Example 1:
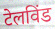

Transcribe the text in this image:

टेलविंड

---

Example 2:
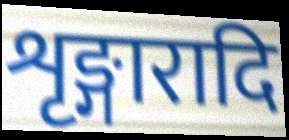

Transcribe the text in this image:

शृङ्गारादि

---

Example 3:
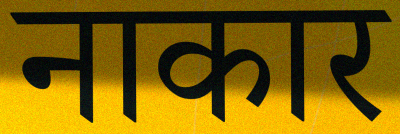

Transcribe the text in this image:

नाकार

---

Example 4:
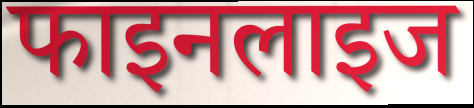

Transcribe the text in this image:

फाइनलाइज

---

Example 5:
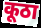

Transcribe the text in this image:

कूठा